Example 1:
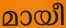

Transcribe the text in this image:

മായീ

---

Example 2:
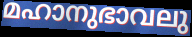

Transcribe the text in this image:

മഹാനുഭാവലു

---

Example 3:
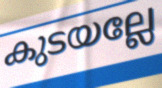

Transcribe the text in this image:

കുടയല്ലേ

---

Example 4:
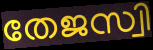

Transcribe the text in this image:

തേജസ്വി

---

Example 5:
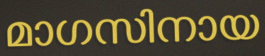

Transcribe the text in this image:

മാഗസിനായ